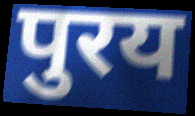
पुरय